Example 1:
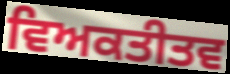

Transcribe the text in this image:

ਵਿਅਕਤੀਤਵ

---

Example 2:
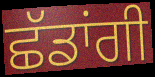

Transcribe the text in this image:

ਛੱਡਾਂਗੀ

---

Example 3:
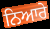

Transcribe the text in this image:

ਨਿਆਰੇ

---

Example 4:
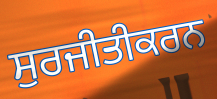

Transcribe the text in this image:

ਸੁਰਜੀਤੀਕਰਨ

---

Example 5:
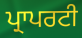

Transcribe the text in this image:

ਪ੍ਰਾਪਰਟੀ